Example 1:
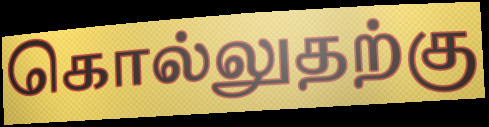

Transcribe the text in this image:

கொல்லுதற்கு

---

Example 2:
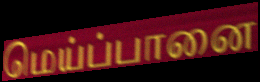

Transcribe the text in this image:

மெய்ப்பானை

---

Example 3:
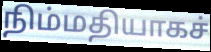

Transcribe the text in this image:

நிம்மதியாகச்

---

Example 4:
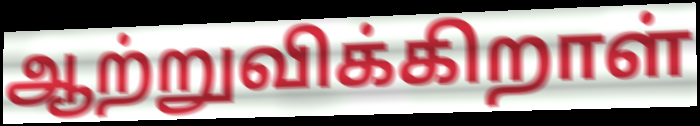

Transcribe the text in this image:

ஆற்றுவிக்கிறாள்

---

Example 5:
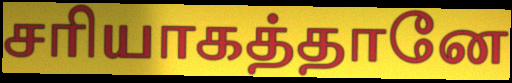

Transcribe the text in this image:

சரியாகத்தானே